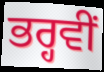
ਭਰ੍ਹਵੀਂ